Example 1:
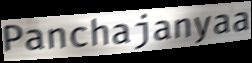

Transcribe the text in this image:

Panchajanyaa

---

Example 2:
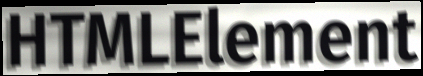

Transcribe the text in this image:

HTMLElement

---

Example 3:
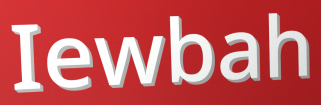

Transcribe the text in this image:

Iewbah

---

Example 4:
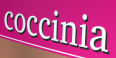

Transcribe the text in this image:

coccinia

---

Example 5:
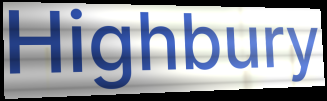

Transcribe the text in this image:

Highbury